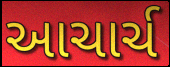
આચાર્ચ